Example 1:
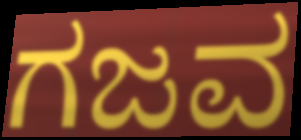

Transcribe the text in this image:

ಗಜವ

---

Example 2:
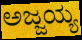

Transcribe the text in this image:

ಅಜ್ಜಯ್ಯ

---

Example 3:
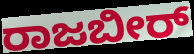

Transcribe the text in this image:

ರಾಜಬೀರ್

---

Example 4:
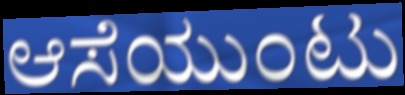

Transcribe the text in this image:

ಆಸೆಯುಂಟು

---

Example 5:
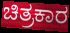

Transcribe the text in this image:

ಚಿತ್ರಕಾರ